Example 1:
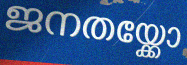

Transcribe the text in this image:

ജനതയ്ക്കോ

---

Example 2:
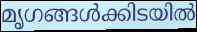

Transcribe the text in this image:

മൃഗങ്ങൾക്കിടയിൽ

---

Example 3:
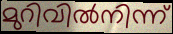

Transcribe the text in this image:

മുറിവിൽനിന്ന്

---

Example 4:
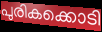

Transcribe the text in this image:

പുരികക്കൊടി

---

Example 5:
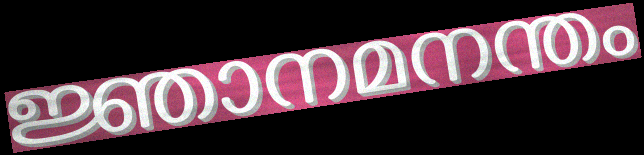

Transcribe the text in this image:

ജ്ഞാനമനന്തം